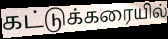
கட்டுக்கரையில்